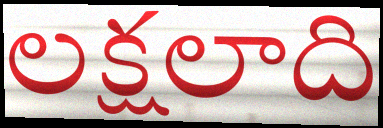
లక్షలాది